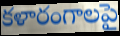
కళారంగాలపై